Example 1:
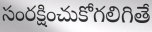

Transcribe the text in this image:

సంరక్షించుకోగలిగితే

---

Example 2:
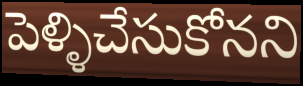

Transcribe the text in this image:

పెళ్ళిచేసుకోనని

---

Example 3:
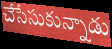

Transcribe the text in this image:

చేసేసుకున్నాడు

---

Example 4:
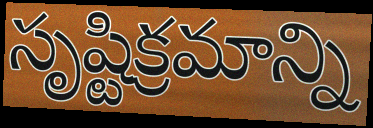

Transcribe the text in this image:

సృష్టిక్రమాన్ని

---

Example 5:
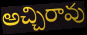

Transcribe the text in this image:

అచ్చిరావు